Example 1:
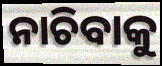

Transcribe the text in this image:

ନାଚିବାକୁ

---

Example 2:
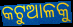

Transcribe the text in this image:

କଟୁଆଳକୁ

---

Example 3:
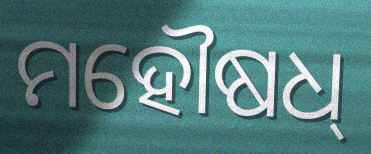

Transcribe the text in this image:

ମହୌଷଧ୍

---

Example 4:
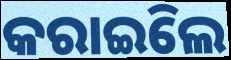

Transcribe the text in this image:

କରାଇିଲେ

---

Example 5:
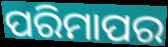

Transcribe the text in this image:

ପରିମାପର